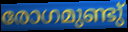
രോഗമുണ്ടു്